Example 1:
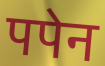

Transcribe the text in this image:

पपेन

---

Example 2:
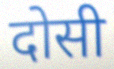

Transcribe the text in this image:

दोसी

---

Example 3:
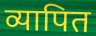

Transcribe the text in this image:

व्यापित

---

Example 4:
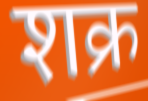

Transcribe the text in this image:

शक्र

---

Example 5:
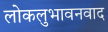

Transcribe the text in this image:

लोकलुभावनवाद